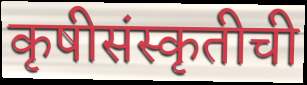
कृषीसंस्कृतीची